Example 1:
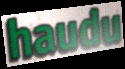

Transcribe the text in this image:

haudu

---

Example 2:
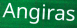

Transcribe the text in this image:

Angiras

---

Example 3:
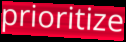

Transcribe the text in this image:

prioritize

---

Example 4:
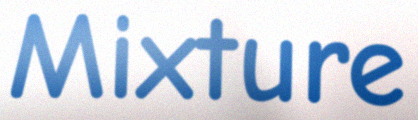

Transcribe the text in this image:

Mixture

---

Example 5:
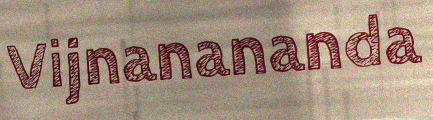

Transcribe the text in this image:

Vijnanananda